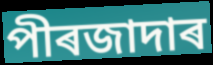
পীৰজাদাৰ